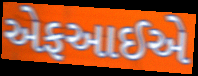
એફઆઈએ